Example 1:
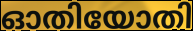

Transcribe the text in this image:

ഓതിയോതി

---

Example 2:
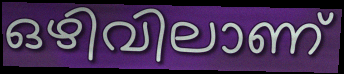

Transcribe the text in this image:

ഒഴിവിലാണ്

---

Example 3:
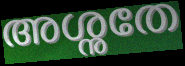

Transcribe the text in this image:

അശ്നുതേ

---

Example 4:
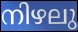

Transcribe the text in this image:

നിഴലു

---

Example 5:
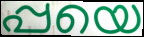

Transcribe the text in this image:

പ്പയെ